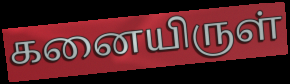
கனையிருள்